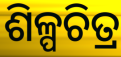
ଶିଳ୍ପଚିତ୍ର